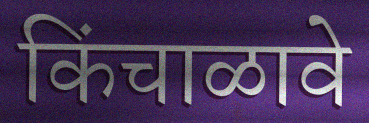
किंचाळावे